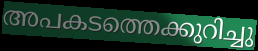
അപകടത്തെക്കുറിച്ചു